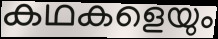
കഥകളെയും